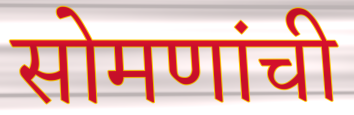
सोमणांची